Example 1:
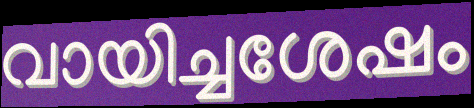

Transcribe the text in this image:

വായിച്ചശേഷം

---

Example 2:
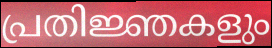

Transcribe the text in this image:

പ്രതിജ്ഞകളും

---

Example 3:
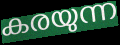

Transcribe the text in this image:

കരയുന്ന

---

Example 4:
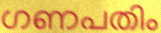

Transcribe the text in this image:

ഗണപതിം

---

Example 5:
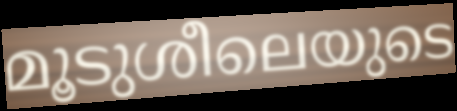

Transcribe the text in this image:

മൂടുശീലെയുടെ